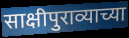
साक्षीपुराव्याच्या